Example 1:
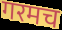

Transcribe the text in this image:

गरमच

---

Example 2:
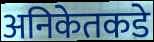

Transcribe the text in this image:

अनिकेतकडे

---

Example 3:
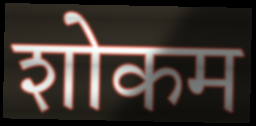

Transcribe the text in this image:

शोकम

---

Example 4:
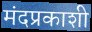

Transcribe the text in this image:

मंदप्रकाशी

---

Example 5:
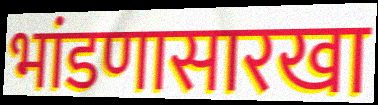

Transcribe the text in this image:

भांडणासारखा